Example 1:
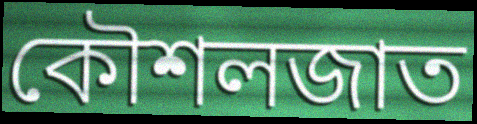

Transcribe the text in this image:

কৌশলজাত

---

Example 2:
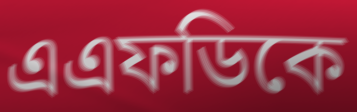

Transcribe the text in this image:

এএফডিকে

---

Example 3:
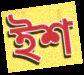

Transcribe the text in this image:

ইশ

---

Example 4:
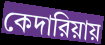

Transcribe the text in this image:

কেদারিয়ায়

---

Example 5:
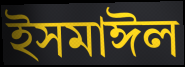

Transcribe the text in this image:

ইসমাঈল